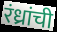
रंध्रांची